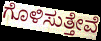
ಗೊಳಿಸುತ್ತೇವೆ